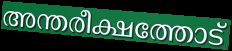
അന്തരീക്ഷത്തോട്